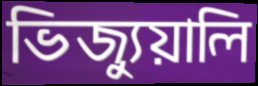
ভিজ্যুয়ালি